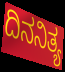
ದಿನನಿತ್ಯ